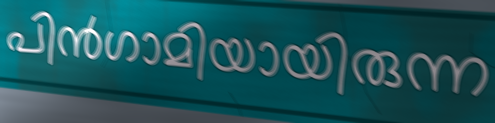
പിൻഗാമിയായിരുന്ന